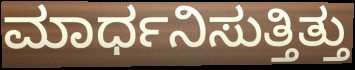
ಮಾರ್ಧನಿಸುತ್ತಿತ್ತು